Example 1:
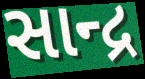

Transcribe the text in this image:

સાન્દ્ર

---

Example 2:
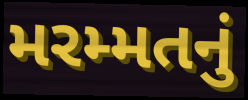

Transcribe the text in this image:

મરમ્મતનું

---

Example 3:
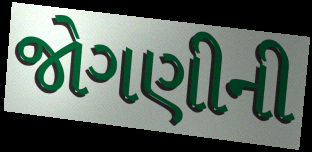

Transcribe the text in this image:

જોગણીની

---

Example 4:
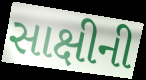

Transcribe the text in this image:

સાક્ષીની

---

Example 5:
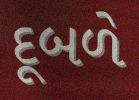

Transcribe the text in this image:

દૂબળે